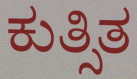
ಕುತ್ಸಿತ